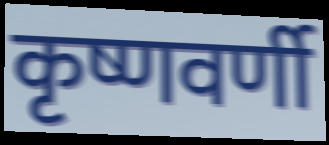
कृष्णवर्णी